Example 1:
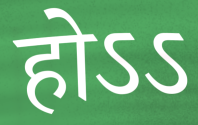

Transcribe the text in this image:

होऽऽ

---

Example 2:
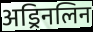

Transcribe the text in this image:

अड्रिनलिन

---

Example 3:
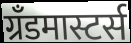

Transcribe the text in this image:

ग्रँडमास्टर्स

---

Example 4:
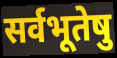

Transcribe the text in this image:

सर्वभूतेषु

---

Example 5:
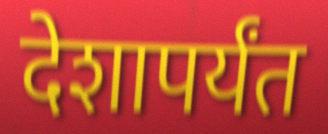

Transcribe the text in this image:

देशापर्यंत